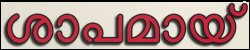
ശാപമായ്